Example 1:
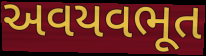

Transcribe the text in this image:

અવયવભૂત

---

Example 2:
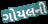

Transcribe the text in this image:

ગોયલની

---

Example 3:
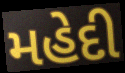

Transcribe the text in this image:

મહેદી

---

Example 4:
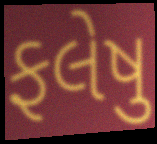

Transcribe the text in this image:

ફલેષુ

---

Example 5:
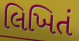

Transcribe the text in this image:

લિખિતં